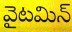
వైటమిన్